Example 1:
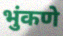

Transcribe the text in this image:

भुंकणे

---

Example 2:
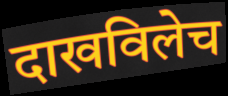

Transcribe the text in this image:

दाखविलेच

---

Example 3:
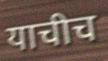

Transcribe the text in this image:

याचीच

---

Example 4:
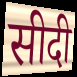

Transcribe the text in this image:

सीदी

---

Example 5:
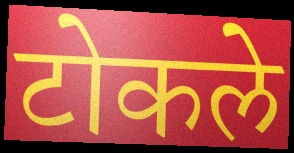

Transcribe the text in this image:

टोकले